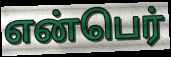
என்பெர்